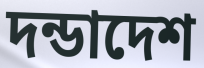
দন্ডাদেশ